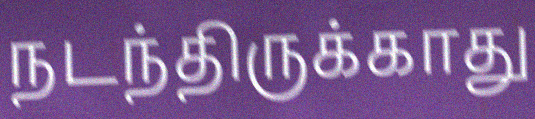
நடந்திருக்காது